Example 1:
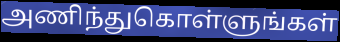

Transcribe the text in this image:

அணிந்துகொள்ளுங்கள்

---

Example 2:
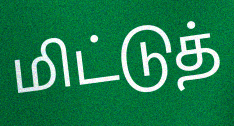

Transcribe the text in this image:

மிட்டுத்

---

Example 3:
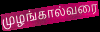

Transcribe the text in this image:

முழங்கால்வரை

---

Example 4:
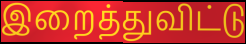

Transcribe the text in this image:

இறைத்துவிட்டு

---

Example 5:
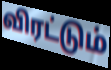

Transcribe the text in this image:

விரட்டும்